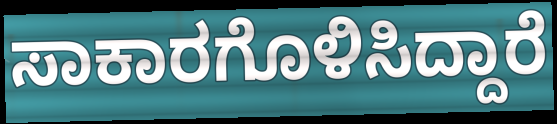
ಸಾಕಾರಗೊಳಿಸಿದ್ದಾರೆ